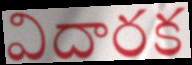
విదారక